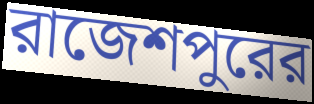
রাজেশপুরের